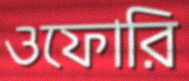
ওফোরি